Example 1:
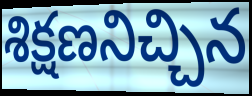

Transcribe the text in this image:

శిక్షణనిచ్చిన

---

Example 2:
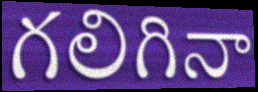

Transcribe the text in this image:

గలిగినా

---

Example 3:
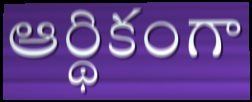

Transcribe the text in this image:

ఆర్థికంగా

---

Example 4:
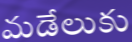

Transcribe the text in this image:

మడేలుకు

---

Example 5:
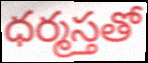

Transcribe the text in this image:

ధర్మస్తతో